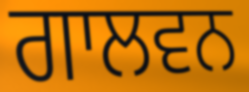
ਗਾਲਵਨ